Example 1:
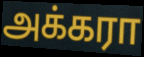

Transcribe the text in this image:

அக்கரா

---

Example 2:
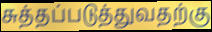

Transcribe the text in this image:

சுத்தப்படுத்துவதற்கு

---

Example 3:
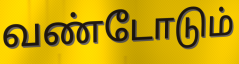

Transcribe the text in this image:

வண்டோடும்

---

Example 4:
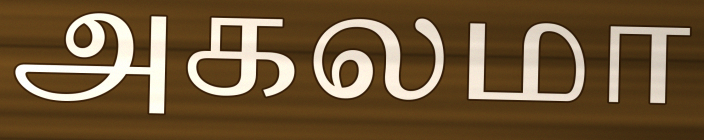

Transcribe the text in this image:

அகலமா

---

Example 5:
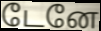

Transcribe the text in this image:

டேனே